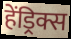
हेंड्रिक्स